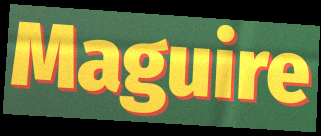
Maguire